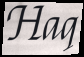
Haq